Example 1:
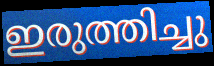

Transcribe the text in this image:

ഇരുത്തിച്ചു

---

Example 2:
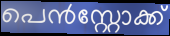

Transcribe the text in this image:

പെൻസ്റ്റോക്ക്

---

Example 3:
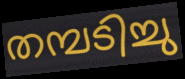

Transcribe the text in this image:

തമ്പടിച്ചു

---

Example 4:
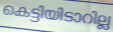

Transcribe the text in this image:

കെട്ടിയിടാറില്ല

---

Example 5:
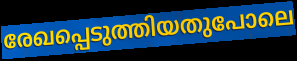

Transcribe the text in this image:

രേഖപ്പെടുത്തിയതുപോലെ